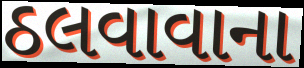
ઠલવાવાના